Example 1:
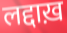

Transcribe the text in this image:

लद्दाख़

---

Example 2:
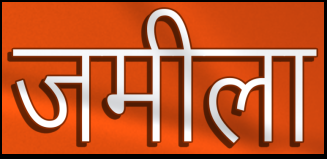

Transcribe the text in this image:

जमीला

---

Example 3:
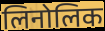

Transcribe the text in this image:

लिनोलिक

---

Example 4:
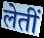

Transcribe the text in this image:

लेतीं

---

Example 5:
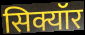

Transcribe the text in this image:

सिक्यॉर